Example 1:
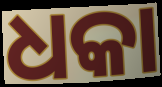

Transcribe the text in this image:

ଧକା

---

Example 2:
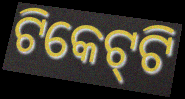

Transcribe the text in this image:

ଟିକେଟ୍‌ଟି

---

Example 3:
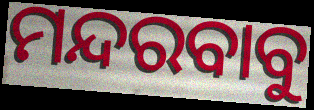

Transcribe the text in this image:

ମନ୍ଦରବାବୁ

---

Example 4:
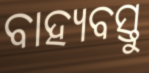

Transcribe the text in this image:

ବାହ୍ୟବସ୍ତୁ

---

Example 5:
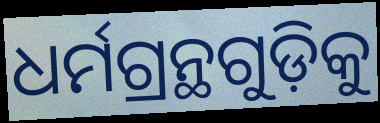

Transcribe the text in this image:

ଧର୍ମଗ୍ରନ୍ଥଗୁଡ଼ିକୁ